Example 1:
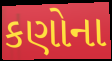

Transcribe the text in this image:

કણોના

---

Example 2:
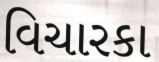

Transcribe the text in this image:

વિચારકા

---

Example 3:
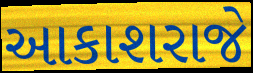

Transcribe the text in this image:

આકાશરાજે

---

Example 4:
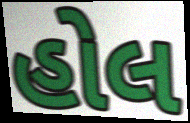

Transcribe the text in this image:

હોલ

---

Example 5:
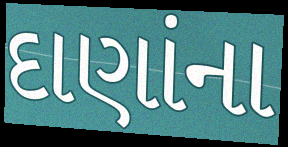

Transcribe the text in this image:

દાણાંના